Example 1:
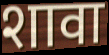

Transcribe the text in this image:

शावा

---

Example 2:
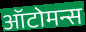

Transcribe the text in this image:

ऑटोमन्स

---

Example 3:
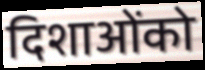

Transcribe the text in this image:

दिशाओंको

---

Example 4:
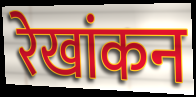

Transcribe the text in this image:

रेखांकन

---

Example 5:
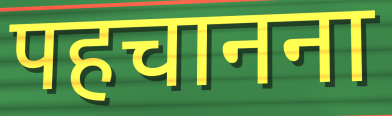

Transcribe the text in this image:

पहचानना